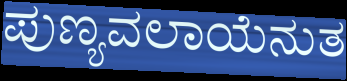
ಪುಣ್ಯವಲಾಯೆನುತ